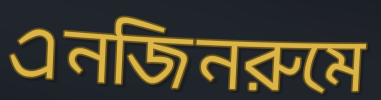
এনজিনরুমে